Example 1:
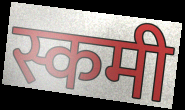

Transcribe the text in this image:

स्कमी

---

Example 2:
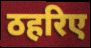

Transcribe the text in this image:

ठहरिए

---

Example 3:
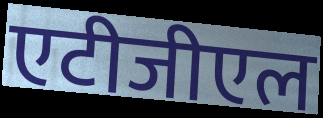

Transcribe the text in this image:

एटीजीएल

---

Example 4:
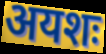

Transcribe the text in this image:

अयशः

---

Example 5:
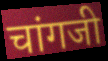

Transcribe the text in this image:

चांगजी